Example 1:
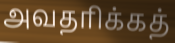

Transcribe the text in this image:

அவதரிக்கத்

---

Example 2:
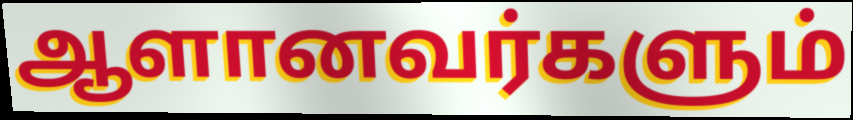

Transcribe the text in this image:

ஆளானவர்களும்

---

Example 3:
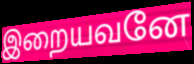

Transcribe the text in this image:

இறையவனே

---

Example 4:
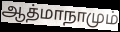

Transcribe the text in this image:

ஆத்மாநாமும்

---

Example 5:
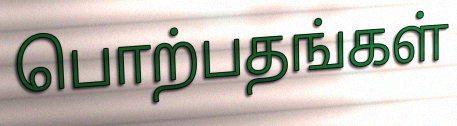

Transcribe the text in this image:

பொற்பதங்கள்